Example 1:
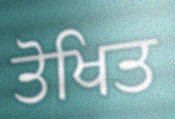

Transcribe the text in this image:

ਤੋਖਿਤ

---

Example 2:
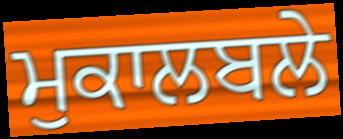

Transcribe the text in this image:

ਮੁਕਾਲਬਲੇ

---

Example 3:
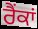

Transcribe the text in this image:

ਰੈਂਕਾਂ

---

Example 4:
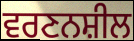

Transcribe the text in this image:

ਵਰਣਨਸ਼ੀਲ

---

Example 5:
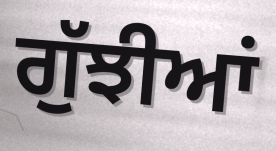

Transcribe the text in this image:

ਗੁੱਝੀਆਂ